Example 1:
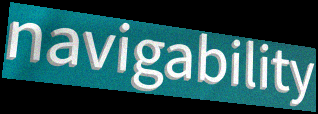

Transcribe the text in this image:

navigability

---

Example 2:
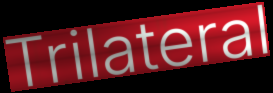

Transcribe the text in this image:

Trilateral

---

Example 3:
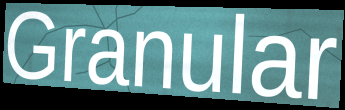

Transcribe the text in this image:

Granular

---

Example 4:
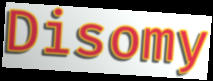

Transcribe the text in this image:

Disomy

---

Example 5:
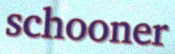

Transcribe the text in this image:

schooner